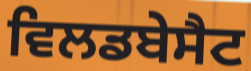
ਵਿਲਡਬੇਸੈਟ